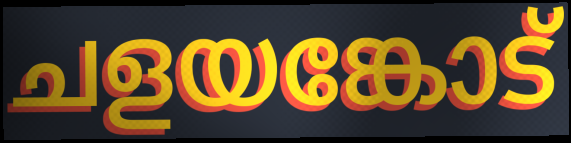
ചളയങ്കോട്